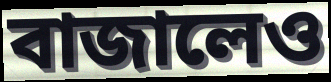
বাজালেও